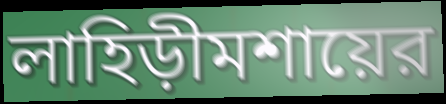
লাহিড়ীমশায়ের